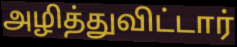
அழித்துவிட்டார்